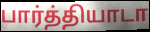
பார்த்தியாடா